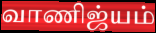
வாணிஜ்யம்